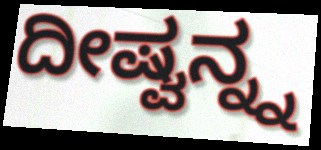
ದೀಷ್ವನ್ನ್ನ